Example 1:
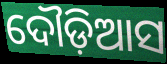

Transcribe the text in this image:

ଦୌଡ଼ିଆସ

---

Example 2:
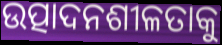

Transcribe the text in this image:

ଉତ୍ପାଦନଶୀଳତାକୁ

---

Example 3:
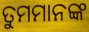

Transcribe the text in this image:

ତୁମମାନଙ୍କ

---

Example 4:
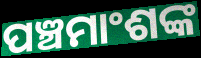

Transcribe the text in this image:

ପଞ୍ଚମାଂଶଙ୍କ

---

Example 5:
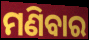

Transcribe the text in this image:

ମଣିବାର